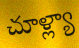
చూళ్ల్యా